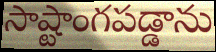
సాష్టాంగపడ్డాను